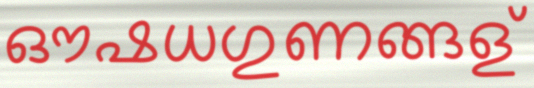
ഔഷധഗുണങ്ങള്